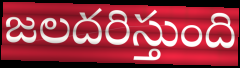
జలదరిస్తుంది